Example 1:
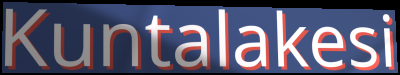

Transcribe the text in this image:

Kuntalakesi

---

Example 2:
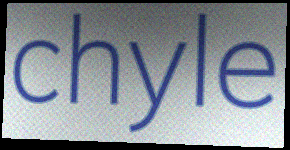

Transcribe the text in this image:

chyle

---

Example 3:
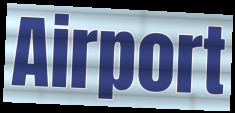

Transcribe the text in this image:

Airport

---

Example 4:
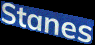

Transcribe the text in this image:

Stanes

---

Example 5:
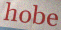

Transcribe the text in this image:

hobe